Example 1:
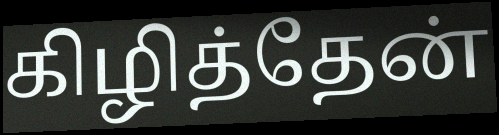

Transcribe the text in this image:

கிழித்தேன்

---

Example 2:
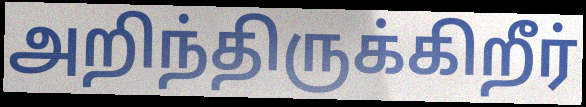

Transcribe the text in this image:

அறிந்திருக்கிறீர்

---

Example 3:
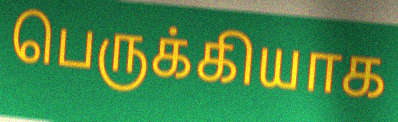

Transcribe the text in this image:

பெருக்கியாக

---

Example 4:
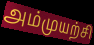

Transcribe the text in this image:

அம்முயற்சி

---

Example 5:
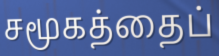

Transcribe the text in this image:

சமூகத்தைப்